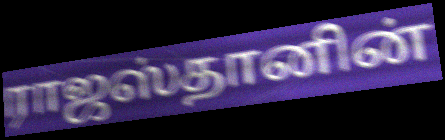
ராஜஸ்தானின்